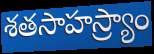
శతసాహస్ర్యాం